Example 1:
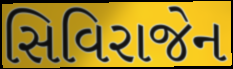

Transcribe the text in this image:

સિવિરાજેન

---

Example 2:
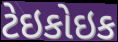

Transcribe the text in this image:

ટેઇકોઇક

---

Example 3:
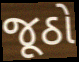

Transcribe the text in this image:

જૂઠો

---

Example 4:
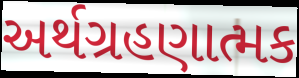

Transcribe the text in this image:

અર્થગ્રહણાત્મક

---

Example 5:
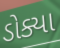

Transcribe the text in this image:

ડોક્યા